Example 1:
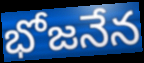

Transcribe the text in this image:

భోజనేన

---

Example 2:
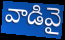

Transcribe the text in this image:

వాడివై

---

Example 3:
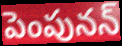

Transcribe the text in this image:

పెంపునన్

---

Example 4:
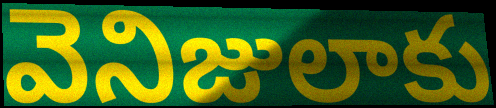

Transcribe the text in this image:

వెనిజులాకు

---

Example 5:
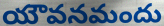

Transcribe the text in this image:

యౌవనమందు